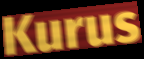
Kurus